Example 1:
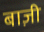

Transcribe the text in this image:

बाज़ी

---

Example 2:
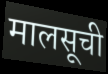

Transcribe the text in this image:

मालसूची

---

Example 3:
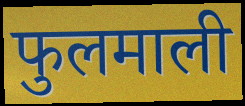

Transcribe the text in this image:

फुलमाली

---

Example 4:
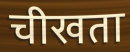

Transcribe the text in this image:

चीखता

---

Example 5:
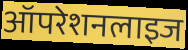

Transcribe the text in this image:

ऑपरेशनलाइज